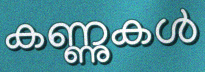
കണ്ണുകൾ